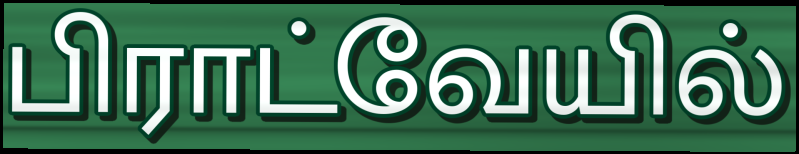
பிராட்வேயில்